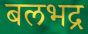
बलभद्र